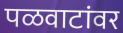
पळवाटांवर